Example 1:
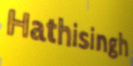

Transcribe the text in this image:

Hathisingh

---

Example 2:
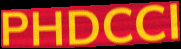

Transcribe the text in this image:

PHDCCI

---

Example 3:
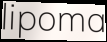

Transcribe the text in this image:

lipoma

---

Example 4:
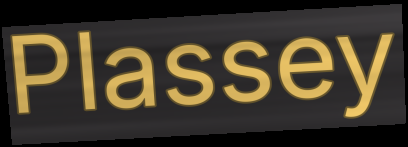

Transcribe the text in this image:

Plassey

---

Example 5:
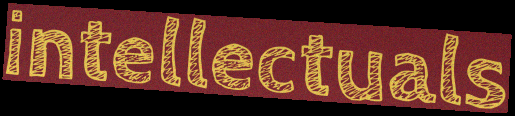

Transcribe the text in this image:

intellectuals